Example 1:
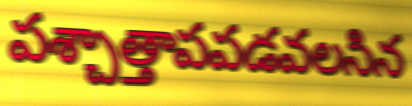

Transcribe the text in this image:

పశ్చాత్తాపపడవలసిన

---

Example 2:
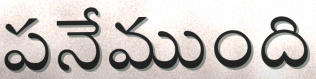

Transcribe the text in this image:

పనేముంది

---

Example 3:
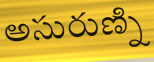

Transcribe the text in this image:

అసురుణ్ని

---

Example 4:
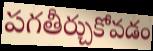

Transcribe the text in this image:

పగతీర్చుకోవడం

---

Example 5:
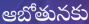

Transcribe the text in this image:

ఆబోతునకు